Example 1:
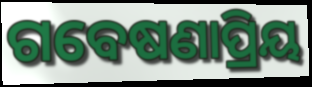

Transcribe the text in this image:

ଗବେଷଣାପ୍ରିୟ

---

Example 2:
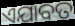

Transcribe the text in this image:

ଏଯାବତ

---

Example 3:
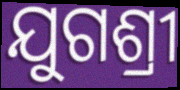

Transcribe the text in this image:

ଯୁଗଶ୍ରୀ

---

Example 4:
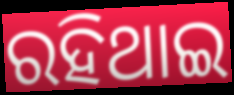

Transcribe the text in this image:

ରହିଥାଇ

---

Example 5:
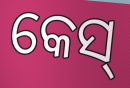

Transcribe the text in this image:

କେସ୍